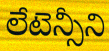
లేటెన్సీని